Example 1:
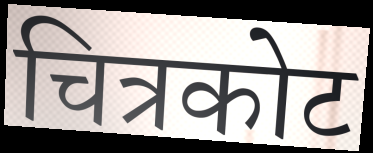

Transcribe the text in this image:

चित्रकोट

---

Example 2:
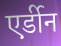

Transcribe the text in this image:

एर्डीन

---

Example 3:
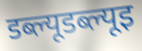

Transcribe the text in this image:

डब्ल्यूडब्ल्यूइ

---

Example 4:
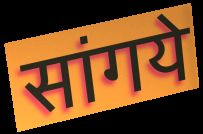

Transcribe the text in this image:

सांगये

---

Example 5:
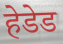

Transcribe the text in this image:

हेडेड